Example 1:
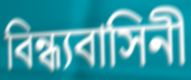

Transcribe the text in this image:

বিন্ধ্যবাসিনী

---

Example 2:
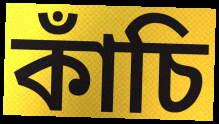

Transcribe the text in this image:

কাঁচি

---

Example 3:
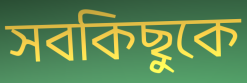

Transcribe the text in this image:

সবকিছুকে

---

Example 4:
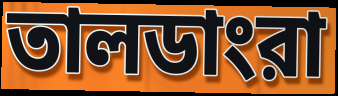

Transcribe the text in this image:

তালডাংরা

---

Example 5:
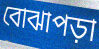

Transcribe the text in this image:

বোঝাপড়া